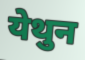
येथुन